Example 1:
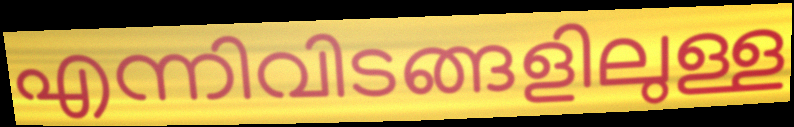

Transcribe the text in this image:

എന്നിവിടങ്ങളിലുള്ള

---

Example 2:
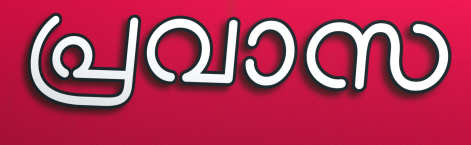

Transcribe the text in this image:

പ്രവാസ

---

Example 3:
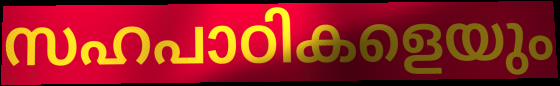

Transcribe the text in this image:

സഹപാഠികളെയും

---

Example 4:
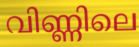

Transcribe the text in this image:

വിണ്ണിലെ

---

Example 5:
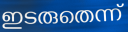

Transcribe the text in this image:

ഇടരുതെന്ന്